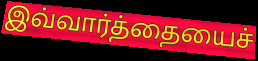
இவ்வார்த்தையைச்